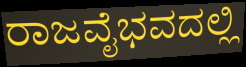
ರಾಜವೈಭವದಲ್ಲಿ